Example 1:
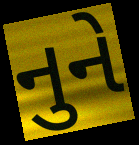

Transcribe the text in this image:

નુને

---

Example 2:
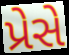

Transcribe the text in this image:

પ્રેસે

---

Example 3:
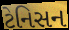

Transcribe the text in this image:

ટેનિસન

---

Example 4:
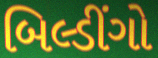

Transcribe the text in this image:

બિલ્ડીંગો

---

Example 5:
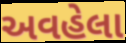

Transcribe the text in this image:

અવહેલા